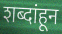
शब्दांहून